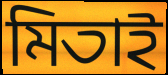
মিতাই